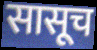
सासूच